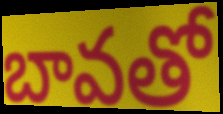
బావతో